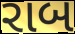
રાબ